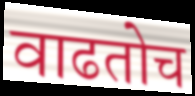
वाढतोच